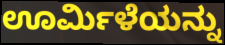
ಊರ್ಮಿಳೆಯನ್ನು